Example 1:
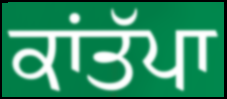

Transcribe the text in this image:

ਕਾਂਤੱਪਾ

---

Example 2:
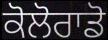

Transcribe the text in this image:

ਕੋਲੋਰਾਡੋ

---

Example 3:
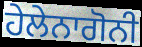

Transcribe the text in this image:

ਹੇਲੇਨਾਗੋਨੀ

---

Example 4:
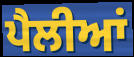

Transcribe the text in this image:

ਪੈਲੀਆਂ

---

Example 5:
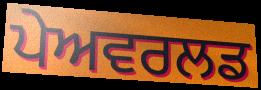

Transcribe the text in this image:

ਪੇਅਵਰਲਡ